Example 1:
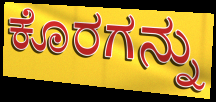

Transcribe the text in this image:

ಕೊರಗನ್ನು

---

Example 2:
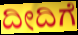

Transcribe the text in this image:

ದೀದಿಗೆ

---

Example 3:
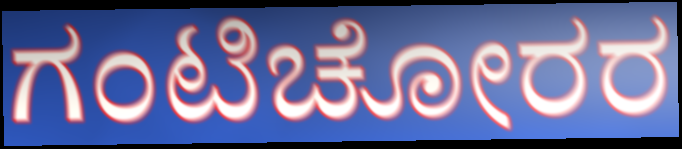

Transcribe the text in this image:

ಗಂಟಿಚೋರರ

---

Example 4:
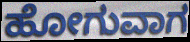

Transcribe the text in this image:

ಹೋಗುವಾಗ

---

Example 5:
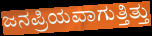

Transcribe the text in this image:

ಜನಪ್ರಿಯವಾಗುತ್ತಿತ್ತು